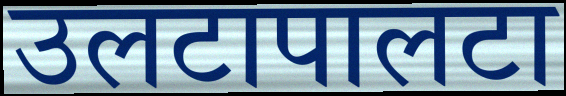
उलटापालटा